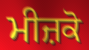
ਮੀਜ਼ਕੋ